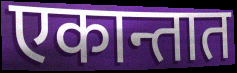
एकान्तात